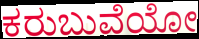
ಕರುಬುವೆಯೋ